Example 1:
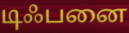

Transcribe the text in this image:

டிஃபனை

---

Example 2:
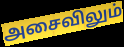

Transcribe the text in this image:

அசைவிலும்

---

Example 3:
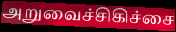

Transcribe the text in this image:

அறுவைச்சிகிச்சை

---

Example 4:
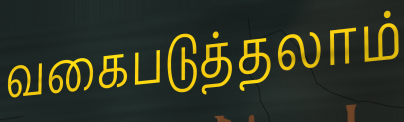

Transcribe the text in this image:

வகைபடுத்தலாம்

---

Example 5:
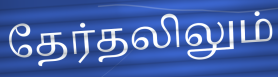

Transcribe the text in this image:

தேர்தலிலும்